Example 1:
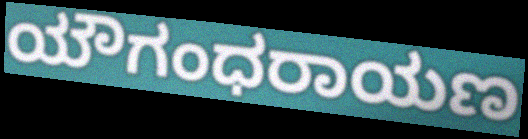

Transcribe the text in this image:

ಯೌಗಂಧರಾಯಣ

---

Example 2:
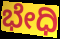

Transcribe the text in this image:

ಭೇಧಿ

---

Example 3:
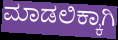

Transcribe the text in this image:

ಮಾಡಲಿಕ್ಕಾಗಿ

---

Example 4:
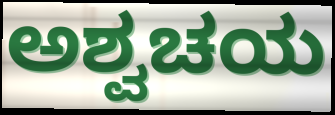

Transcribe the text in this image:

ಅಶ್ವಚಯ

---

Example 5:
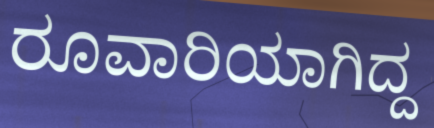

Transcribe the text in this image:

ರೂವಾರಿಯಾಗಿದ್ದ